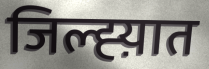
जिल्ह्य़ात